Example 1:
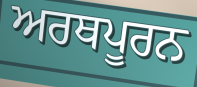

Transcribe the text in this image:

ਅਰਥਪੂਰਨ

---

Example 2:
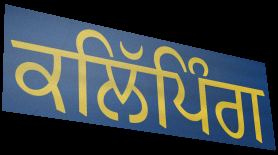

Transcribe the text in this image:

ਕਲਿੱਪਿੰਗ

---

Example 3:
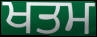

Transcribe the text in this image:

ਖਤਮ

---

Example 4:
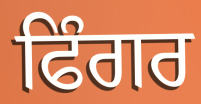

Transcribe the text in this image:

ਫਿੰਗਰ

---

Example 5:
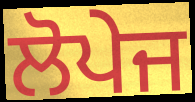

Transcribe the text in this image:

ਲੋਪੇਜ